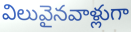
విలువైనవాళ్లుగా